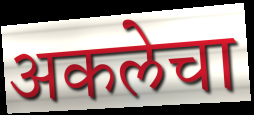
अकलेचा